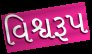
વિશ્વરૂપ